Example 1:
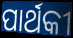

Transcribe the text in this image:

ପାର୍ଥକୀ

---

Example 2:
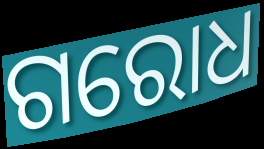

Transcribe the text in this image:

ଗରୋଧ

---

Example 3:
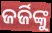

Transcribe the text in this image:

ଜର୍ଜିଙ୍କୁ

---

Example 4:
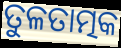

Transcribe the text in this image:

ତୁଳତାତ୍ମକ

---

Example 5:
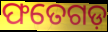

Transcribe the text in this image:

ଫତେଗଡ଼